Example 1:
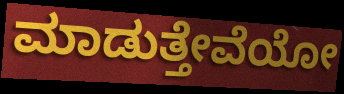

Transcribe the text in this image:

ಮಾಡುತ್ತೇವೆಯೋ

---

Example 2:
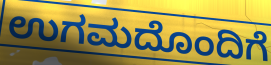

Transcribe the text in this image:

ಉಗಮದೊಂದಿಗೆ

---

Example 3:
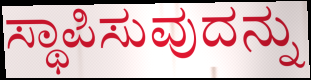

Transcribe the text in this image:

ಸ್ಥಾಪಿಸುವುದನ್ನು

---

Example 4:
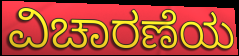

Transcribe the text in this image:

ವಿಚಾರಣೆಯ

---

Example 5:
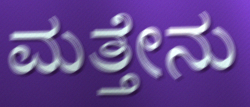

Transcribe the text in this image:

ಮತ್ತೇನು